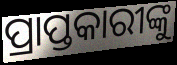
ପ୍ରାପ୍ତକାରୀଙ୍କୁ